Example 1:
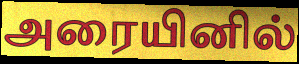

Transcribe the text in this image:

அரையினில்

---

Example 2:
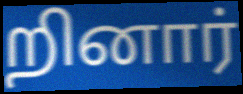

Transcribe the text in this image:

றினார்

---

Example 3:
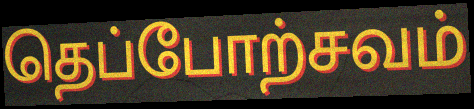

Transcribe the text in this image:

தெப்போற்சவம்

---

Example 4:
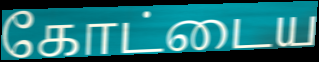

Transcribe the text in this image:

கோட்டைய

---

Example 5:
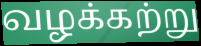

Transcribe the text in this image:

வழக்கற்று